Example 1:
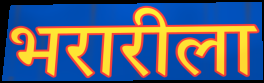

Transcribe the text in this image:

भरारीला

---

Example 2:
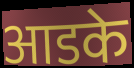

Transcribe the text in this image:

आडके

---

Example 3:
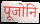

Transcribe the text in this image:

पूजोनि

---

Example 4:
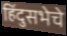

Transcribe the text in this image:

हिंदुसभेचे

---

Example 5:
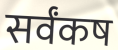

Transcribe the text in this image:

सर्वंकष